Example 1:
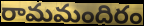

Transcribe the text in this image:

రామమందిరం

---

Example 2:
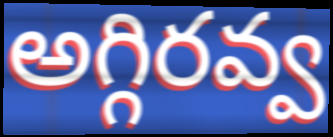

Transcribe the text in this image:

అగ్గిరవ్వ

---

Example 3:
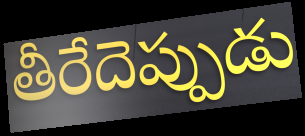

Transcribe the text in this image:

తీరేదెప్పుడు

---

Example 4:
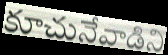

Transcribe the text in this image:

కూచునేవాడిని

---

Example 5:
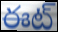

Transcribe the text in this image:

ఈట్